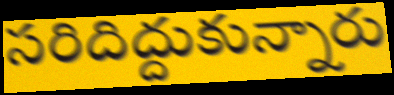
సరిదిద్దుకున్నారు